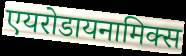
एयरोडायनामिक्स